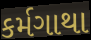
કર્મગાથા